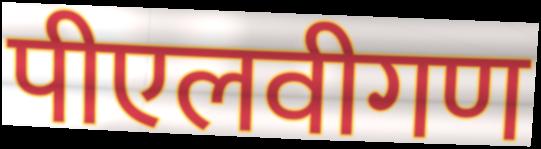
पीएलवीगण